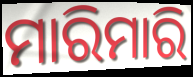
ମାରିମାରି